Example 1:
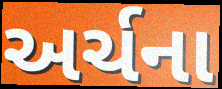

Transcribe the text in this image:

અર્ચના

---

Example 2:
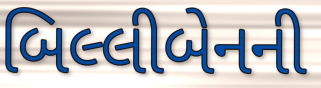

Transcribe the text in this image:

બિલ્લીબેનની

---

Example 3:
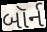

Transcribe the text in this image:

બૉર્ન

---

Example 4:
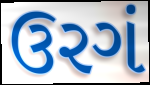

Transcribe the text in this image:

ઉરગં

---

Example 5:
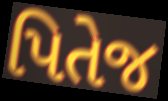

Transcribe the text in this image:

પિતેજ